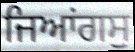
ਜਿਆਂਗਸੁ